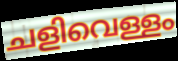
ചളിവെള്ളം